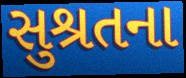
સુશ્રતના